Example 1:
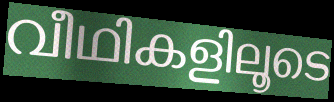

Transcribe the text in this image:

വീഥികളിലൂടെ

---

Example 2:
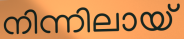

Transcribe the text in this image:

നിന്നിലായ്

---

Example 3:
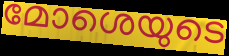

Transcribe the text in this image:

മോശെയുടെ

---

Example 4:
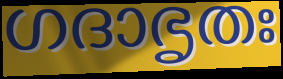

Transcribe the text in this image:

ഗദാഭൃതഃ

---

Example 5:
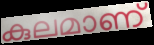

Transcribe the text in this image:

കുലമാണ്